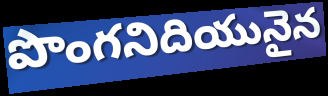
పొంగనిదియునైన